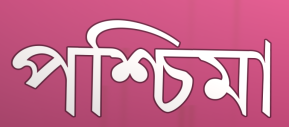
পশ্চিমা